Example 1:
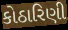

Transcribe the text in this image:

કોઠારિણી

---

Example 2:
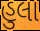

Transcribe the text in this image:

હુલા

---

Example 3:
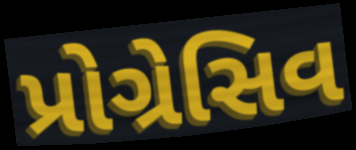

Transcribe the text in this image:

પ્રોગ્રેસિવ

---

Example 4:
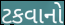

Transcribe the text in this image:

ટકવાનો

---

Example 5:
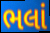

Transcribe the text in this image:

ભલાં